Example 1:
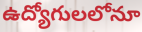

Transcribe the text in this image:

ఉద్యోగులలోనూ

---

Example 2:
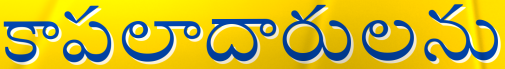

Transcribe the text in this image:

కాపలాదారులను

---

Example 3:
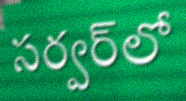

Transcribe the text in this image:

సర్వర్‌లో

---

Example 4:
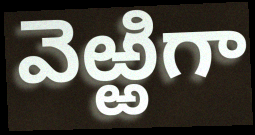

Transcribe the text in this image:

వెఱ్ఱిగా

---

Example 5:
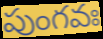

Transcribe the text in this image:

పుంగవః